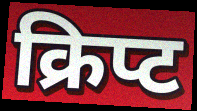
क्रिप्ट